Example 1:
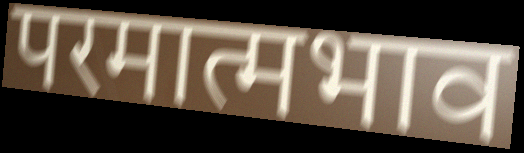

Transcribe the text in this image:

परमात्मभाव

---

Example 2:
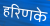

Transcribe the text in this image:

हरिणके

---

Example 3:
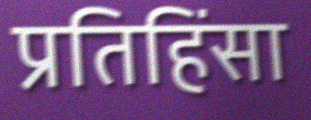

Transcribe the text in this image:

प्रतिहिंसा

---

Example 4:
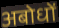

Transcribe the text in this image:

अबोधों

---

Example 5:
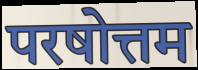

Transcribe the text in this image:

परषोत्तम